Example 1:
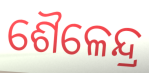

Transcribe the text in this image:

ଶୈଳେନ୍ଦ୍ର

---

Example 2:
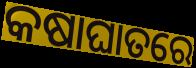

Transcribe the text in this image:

କଷାଘାତରେ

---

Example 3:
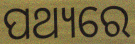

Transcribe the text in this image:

ପଥ୍ୟରେ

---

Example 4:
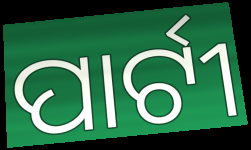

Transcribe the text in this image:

ପାର୍ଟୀ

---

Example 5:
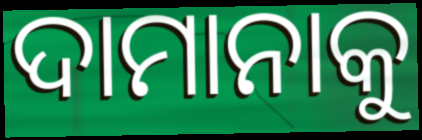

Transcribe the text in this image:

ଦାମାନାକୁ